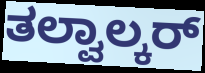
ತಲ್ವಾಲ್ಕರ್